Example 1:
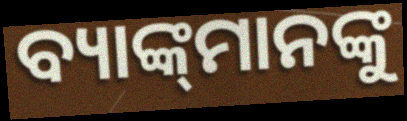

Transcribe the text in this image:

ବ୍ୟାଙ୍କ୍‌ମାନଙ୍କୁ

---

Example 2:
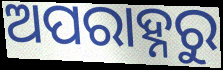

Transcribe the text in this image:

ଅପରାହ୍ନରୁ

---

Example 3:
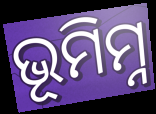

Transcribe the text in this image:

ଭୂମିମ୍ନ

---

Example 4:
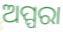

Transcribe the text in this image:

ଅପ୍ପରା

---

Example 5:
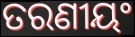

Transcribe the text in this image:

ତରଣୀୟଂ